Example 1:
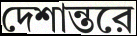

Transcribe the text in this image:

দেশান্তরে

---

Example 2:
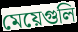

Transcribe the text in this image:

মেয়েগুলি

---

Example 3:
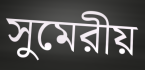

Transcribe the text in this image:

সুমেরীয়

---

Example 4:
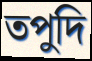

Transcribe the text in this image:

তপুদি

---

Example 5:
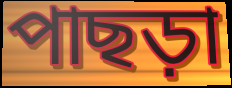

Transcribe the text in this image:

পাছড়া